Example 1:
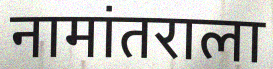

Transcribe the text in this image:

नामांतराला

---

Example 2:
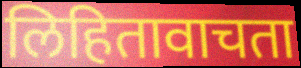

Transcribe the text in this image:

लिहितावाचता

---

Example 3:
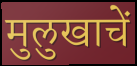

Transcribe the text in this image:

मुलुखाचें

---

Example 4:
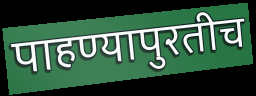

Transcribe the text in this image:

पाहण्यापुरतीच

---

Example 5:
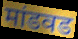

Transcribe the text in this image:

मांडवड